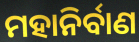
ମହାନିର୍ବାଣ